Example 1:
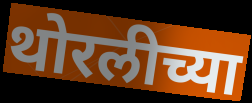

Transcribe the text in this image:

थोरलीच्या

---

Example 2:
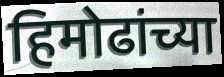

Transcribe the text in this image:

हिमोढांच्या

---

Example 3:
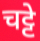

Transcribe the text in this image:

चट्टे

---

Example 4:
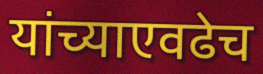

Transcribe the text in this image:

यांच्याएवढेच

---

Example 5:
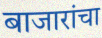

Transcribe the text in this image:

बाजारांचा